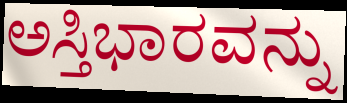
ಅಸ್ತಿಭಾರವನ್ನು